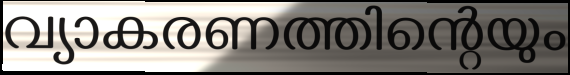
വ്യാകരണത്തിന്റെയും